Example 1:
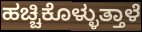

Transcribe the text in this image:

ಹಚ್ಚಿಕೊಳ್ಳುತ್ತಾಳೆ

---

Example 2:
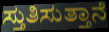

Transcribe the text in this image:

ಸ್ತುತಿಸುತ್ತಾನೆ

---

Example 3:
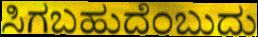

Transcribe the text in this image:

ಸಿಗಬಹುದೆಂಬುದು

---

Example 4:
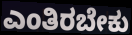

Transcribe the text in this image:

ಎಂತಿರಬೇಕು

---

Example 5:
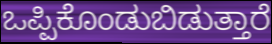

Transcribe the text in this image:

ಒಪ್ಪಿಕೊಂಡುಬಿಡುತ್ತಾರೆ